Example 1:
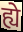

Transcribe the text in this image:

ह्ये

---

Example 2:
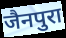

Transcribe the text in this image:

जैनपुरा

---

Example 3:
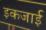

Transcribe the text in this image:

इकजाई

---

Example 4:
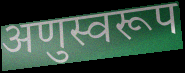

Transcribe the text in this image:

अणुस्वरूप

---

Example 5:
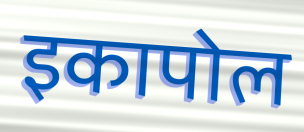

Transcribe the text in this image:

इकापोल